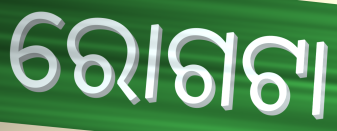
ରୋଗଟା